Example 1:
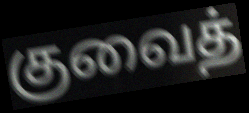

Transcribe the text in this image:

குவைத்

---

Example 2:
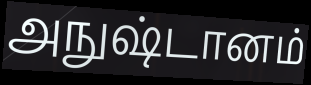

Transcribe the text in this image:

அநுஷ்டானம்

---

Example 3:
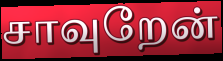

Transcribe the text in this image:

சாவுறேன்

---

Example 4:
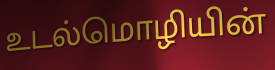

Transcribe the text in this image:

உடல்மொழியின்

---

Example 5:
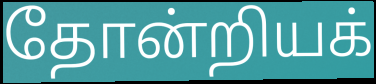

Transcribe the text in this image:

தோன்றியக்